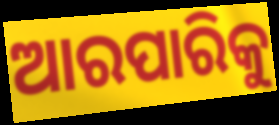
ଆରପାରିକୁ